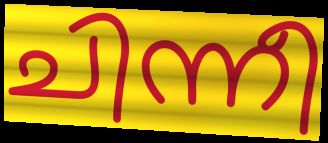
ചിന്നീ